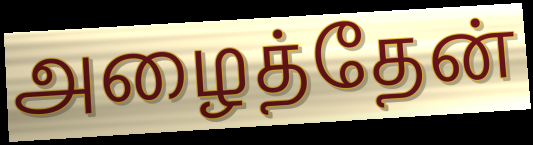
அழைத்தேன்